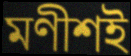
মণীশই